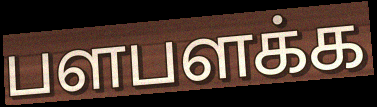
பளபளக்க